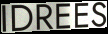
IDREES